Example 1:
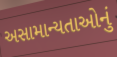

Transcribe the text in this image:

અસામાન્યતાઓનું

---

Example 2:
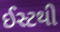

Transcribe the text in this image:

ઈસ્ટથી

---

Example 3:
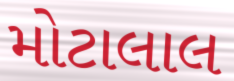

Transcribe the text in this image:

મોટાલાલ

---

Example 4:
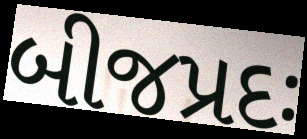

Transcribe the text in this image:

બીજપ્રદઃ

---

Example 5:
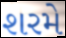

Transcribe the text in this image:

શરમે